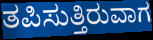
ತಪಿಸುತ್ತಿರುವಾಗ